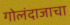
गोलंदाजाचा